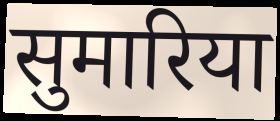
सुमारिया